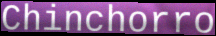
Chinchorro